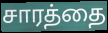
சாரத்தை